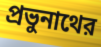
প্রভুনাথের